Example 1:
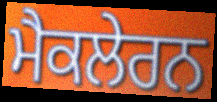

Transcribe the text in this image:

ਮੈਕਲੇਰਨ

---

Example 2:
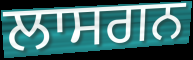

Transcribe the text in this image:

ਲਾਸਗਨ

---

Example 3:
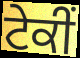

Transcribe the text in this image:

ਟੇਕੀਂ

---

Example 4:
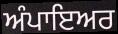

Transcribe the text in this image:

ਅੰਪਾਇਅਰ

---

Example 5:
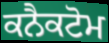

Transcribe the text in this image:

ਕਨੈਕਟੋਮ